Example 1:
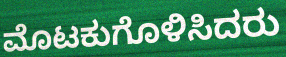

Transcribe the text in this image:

ಮೊಟಕುಗೊಳಿಸಿದರು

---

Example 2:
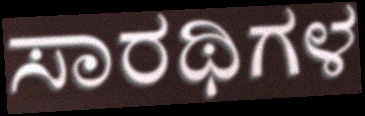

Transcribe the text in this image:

ಸಾರಥಿಗಳ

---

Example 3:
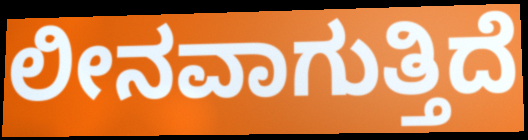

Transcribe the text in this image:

ಲೀನವಾಗುತ್ತಿದೆ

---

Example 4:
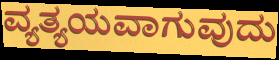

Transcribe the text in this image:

ವ್ಯತ್ಯಯವಾಗುವುದು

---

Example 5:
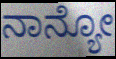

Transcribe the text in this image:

ನಾನ್ಯೋ